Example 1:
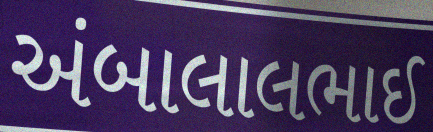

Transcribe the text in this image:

અંબાલાલભાઈ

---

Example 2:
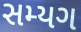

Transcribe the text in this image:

સમ્યગ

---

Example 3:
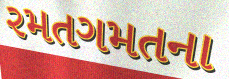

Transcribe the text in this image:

રમતગમતના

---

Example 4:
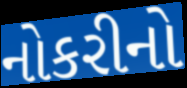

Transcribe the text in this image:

નોકરીનો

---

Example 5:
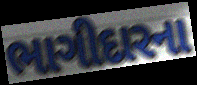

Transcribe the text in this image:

ભાગીદારના